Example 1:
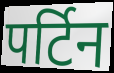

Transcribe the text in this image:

पर्टिन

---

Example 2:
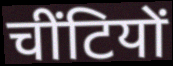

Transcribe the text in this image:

चींटियों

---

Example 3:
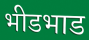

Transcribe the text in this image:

भीडभाड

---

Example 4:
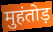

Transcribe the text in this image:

मुहंतोड़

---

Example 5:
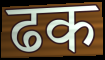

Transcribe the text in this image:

ढक